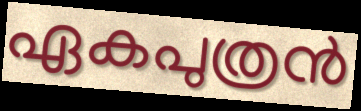
ഏകപുത്രൻ